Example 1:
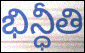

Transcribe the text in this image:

భిన్ధీతి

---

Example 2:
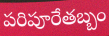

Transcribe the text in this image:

పరిపూరేతబ్బం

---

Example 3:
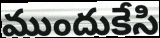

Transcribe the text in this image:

ముందుకేసి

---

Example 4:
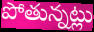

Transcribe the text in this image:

పోతున్నట్లు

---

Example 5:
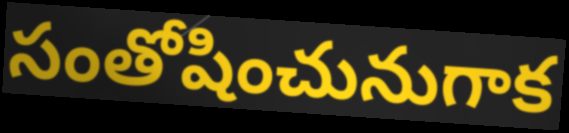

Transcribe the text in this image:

సంతోషించునుగాక